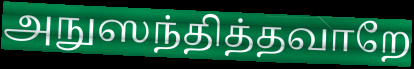
அநுஸந்தித்தவாறே